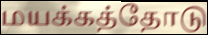
மயக்கத்தோடு